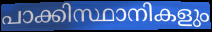
പാക്കിസ്ഥാനികളും